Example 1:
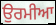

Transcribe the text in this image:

ਉਰਮੀਆ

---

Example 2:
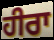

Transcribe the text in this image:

ਹੀਰਾ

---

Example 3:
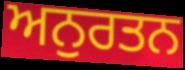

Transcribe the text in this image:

ਅਨੁਰਤਨ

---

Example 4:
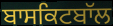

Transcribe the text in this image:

ਬਾਸਕਿਟਬਾੱਲ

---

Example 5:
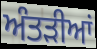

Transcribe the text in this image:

ਅੰਤੜੀਆਂ